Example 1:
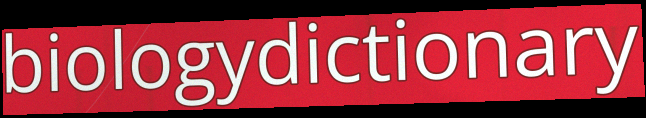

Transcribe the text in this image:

biologydictionary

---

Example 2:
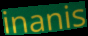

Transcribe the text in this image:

inanis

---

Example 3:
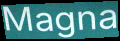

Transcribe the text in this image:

Magna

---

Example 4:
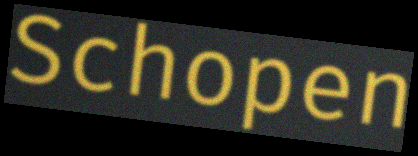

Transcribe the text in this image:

Schopen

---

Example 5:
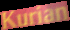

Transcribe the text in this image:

Kurian